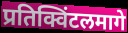
प्रतिक्विंटलमागे